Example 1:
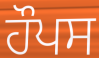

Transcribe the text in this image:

ਹੌਪਸ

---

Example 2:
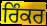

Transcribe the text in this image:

ਰਿੰਕਰ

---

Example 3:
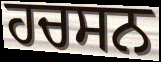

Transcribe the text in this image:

ਹਚਸਨ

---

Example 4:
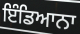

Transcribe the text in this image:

ਇੰਡਿਆਨਾ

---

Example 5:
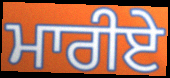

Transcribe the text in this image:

ਮਾਰੀਏ